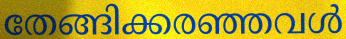
തേങ്ങിക്കരഞ്ഞവൾ